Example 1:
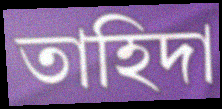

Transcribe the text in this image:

তাহিদা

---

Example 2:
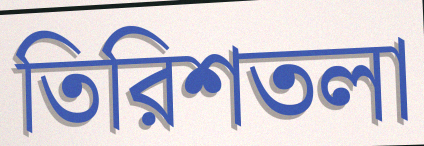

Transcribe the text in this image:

তিরিশতলা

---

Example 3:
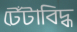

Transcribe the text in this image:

টেঁটাবিদ্ধ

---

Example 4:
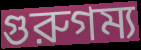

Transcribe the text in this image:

গুরুগম্য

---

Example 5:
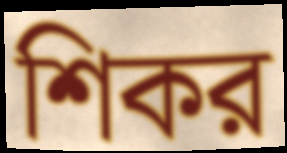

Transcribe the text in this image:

শিকর